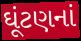
ઘૂંટણનાં